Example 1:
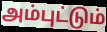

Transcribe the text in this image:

அம்புட்டும்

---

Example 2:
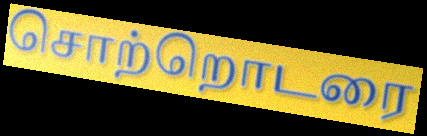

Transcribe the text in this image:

சொற்றொடரை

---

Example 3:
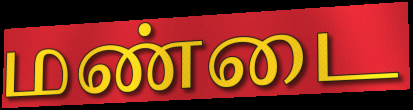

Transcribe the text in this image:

மண்டை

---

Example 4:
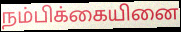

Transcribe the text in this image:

நம்பிக்கையினை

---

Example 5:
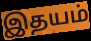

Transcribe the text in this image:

இதயம்